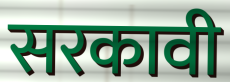
सरकावी